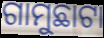
ଗାମୁଛାଟା